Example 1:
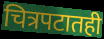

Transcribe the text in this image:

चित्रपटातही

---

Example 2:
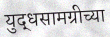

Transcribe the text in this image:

युद्धसामग्रीच्या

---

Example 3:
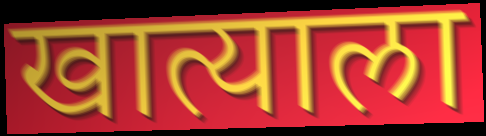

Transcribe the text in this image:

खात्याला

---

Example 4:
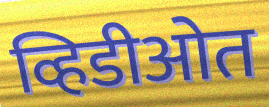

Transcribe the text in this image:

व्हिडीओत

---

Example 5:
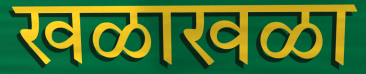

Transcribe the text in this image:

खळाखळा